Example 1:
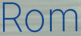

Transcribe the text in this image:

Rom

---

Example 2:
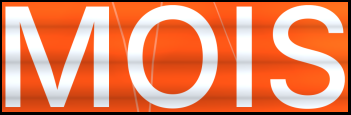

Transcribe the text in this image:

MOIS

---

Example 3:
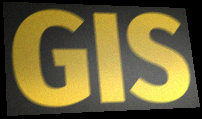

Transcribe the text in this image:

GIS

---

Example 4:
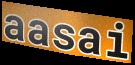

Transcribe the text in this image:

aasai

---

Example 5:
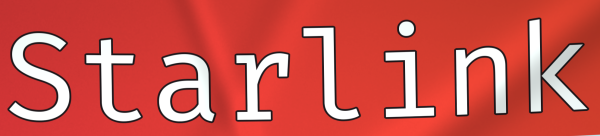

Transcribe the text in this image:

Starlink